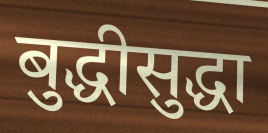
बुद्धीसुद्धा